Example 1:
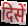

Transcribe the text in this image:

दिसें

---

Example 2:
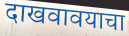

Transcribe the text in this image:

दाखवावयाचा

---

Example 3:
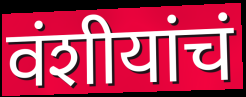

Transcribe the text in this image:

वंशीयांचं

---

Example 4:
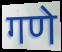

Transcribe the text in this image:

गणे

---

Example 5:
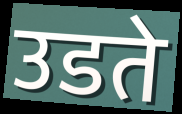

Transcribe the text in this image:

उडते